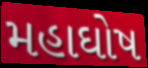
મહાઘોષ